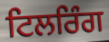
ਟਿਲਰਿੰਗ